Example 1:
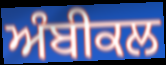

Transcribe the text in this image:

ਅੰਬੀਕਲ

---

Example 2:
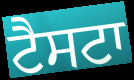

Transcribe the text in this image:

ਟੈਸਟਾ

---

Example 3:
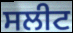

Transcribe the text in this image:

ਸਲੀਟ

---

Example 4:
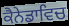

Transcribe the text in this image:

ਕੈਨੇਡਾਵਿਚ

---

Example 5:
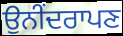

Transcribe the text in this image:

ਉਨੀਂਦਰਾਪਣ